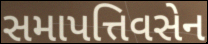
સમાપત્તિવસેન